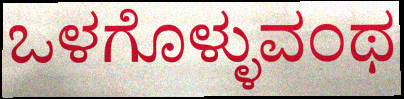
ಒಳಗೊಳ್ಳುವಂಥ